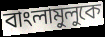
বাংলামুলুকে